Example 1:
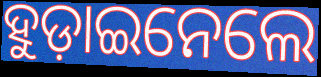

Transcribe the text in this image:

ହୁଡ଼ାଇନେଲେ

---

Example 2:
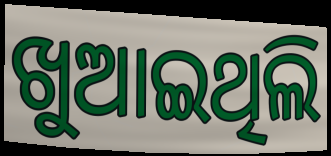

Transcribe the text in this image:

ଖୁଆଇଥିଲି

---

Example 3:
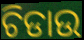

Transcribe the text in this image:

ଚିଡାଉ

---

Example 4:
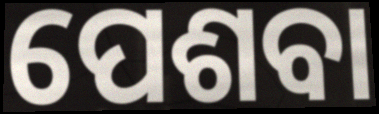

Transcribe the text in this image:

ପେଶବା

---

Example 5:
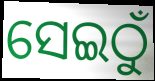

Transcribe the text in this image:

ସେଇଠୁଁ